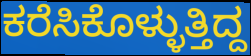
ಕರೆಸಿಕೊಳ್ಳುತ್ತಿದ್ದ